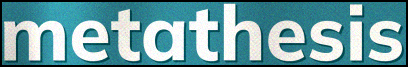
metathesis